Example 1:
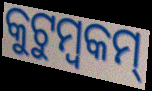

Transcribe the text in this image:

କୁଟୁମ୍ବକମ୍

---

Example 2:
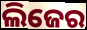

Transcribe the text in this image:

ଲିଜେର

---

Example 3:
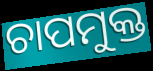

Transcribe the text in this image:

ଚାପମୁକ୍ତ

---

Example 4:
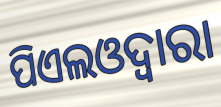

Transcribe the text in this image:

ପିଏଲଓଦ୍ୱାରା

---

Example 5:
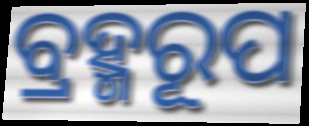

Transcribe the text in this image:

ବ୍ରହ୍ମରୂପ